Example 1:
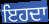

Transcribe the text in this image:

ਇਹਦਾ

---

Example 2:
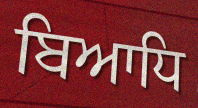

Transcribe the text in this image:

ਬਿਆਧਿ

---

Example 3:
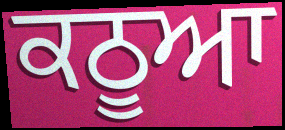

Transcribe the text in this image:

ਕਠੂਆ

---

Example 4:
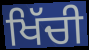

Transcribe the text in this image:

ਖਿੱਚੀ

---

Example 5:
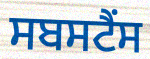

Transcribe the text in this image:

ਸਬਸਟੈਂਸ